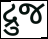
દ્રુજ